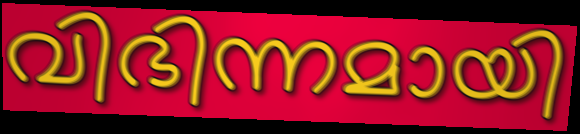
വിഭിന്നമായി